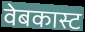
वेबकास्ट